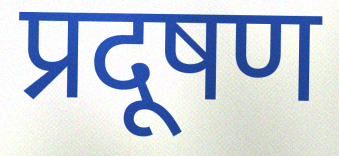
प्रदूषण